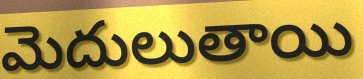
మెదులుతాయి